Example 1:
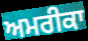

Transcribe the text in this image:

ਅਮਰੀਕਾ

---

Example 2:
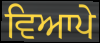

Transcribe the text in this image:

ਵਿਆਪੇ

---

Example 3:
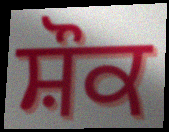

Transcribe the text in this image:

ਸ਼ੌਕ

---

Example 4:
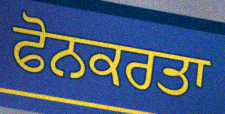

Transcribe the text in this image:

ਫੋਨਕਰਤਾ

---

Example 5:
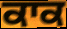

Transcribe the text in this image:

ਕਾਕ